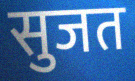
सुजत